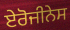
ਏਰੋਜੀਨੇਸ